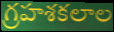
గ్రహశకలాల